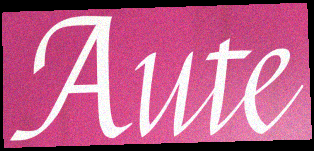
Aute